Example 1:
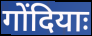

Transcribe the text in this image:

गोंदियाः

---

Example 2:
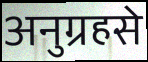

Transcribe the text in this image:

अनुग्रहसे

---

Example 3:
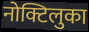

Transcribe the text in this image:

नोक्टिलुका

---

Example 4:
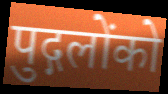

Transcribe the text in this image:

पुद्गलोंको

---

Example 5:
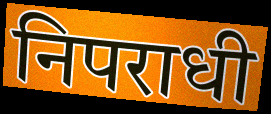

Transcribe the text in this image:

निपराधी